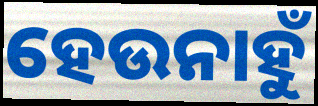
ହେଉନାହୁଁ